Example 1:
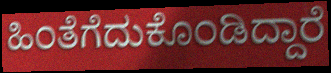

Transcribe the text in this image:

ಹಿಂತೆಗೆದುಕೊಂಡಿದ್ದಾರೆ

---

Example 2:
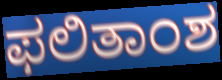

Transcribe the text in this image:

ಫಲಿತಾಂಶ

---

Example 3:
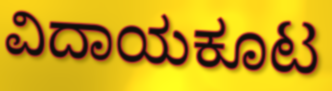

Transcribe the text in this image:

ವಿದಾಯಕೂಟ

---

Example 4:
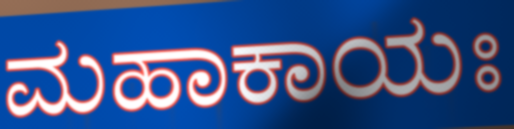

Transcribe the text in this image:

ಮಹಾಕಾಯಃ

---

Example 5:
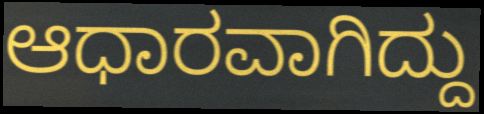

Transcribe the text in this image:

ಆಧಾರವಾಗಿದ್ದು